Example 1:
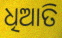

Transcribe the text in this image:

ଧିଆତି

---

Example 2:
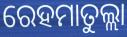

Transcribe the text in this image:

ରେହମାତୁଲ୍ଲା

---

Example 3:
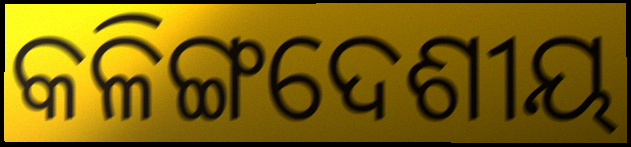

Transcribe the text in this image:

କଳିଙ୍ଗଦେଶୀୟ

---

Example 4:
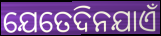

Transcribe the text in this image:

ଯେତେଦିନଯାଏଁ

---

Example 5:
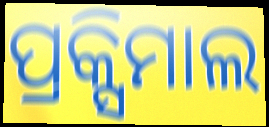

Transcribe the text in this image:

ପ୍ରକ୍ସିମାଲ